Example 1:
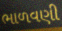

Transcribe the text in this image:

ભાળવણી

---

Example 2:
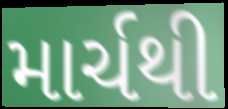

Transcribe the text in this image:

માર્ચથી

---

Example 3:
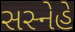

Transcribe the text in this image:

સસ્નેહે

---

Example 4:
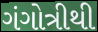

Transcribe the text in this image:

ગંગોત્રીથી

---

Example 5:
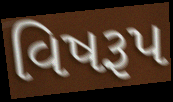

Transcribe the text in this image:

વિષરૂપ